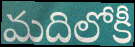
మదిలోకీ